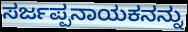
ಸರ್ಜಪ್ಪನಾಯಕನನ್ನು